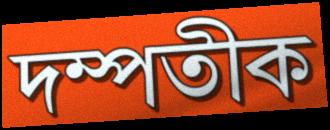
দম্পতীক